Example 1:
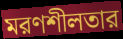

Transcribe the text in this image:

মরণশীলতার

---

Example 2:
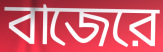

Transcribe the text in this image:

বাজেরে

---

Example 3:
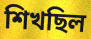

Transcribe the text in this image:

শিখছিল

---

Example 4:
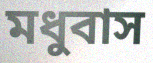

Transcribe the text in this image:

মধুবাস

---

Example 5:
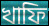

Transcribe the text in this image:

খাফি